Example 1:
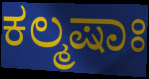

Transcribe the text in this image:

ಕಲ್ಮಷಾಃ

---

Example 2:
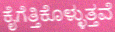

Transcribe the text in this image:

ಕೈಗೆತ್ತಿಕೊಳ್ಳುತ್ತವೆ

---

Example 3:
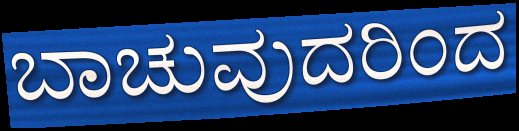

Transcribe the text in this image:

ಬಾಚುವುದರಿಂದ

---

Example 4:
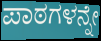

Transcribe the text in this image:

ಪಾಠಗಳನ್ನೇ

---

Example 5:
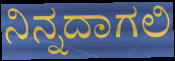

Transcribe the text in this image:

ನಿನ್ನದಾಗಲಿ